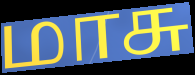
மாசு